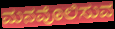
ಮನವೊಲಿಸುವ